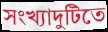
সংখ্যাদুটিতে